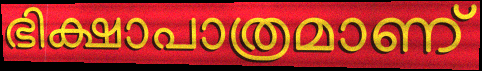
ഭിക്ഷാപാത്രമാണ്